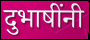
दुभाषींनी